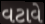
વટાવે